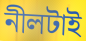
নীলটাই